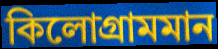
কিলোগ্ৰামমান